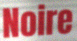
Noire